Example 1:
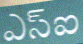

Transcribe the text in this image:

ఎస్ఐ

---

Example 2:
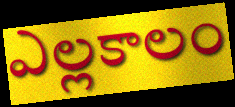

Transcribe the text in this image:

ఎల్లకాలం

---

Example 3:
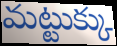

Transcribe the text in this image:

మట్టుక్కు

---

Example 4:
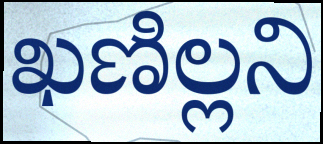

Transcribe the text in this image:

ఖణిల్లని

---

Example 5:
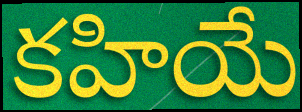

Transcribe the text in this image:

కహియే